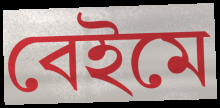
বেইমে